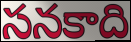
సనకాది